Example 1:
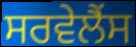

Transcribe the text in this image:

ਸਰਵੇਲੈਂਸ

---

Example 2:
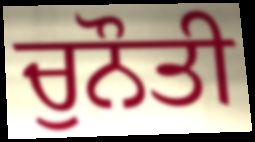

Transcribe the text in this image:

ਚੁਨੌਤੀ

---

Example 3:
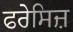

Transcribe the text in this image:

ਫਰੇਸਿਜ਼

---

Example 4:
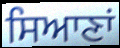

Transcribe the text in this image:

ਸਿਆਣਾਂ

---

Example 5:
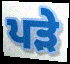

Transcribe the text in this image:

ਪੜੇ